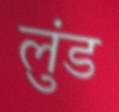
लुंड